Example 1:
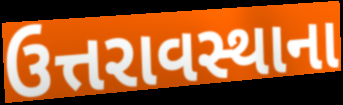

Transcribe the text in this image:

ઉત્તરાવસ્થાના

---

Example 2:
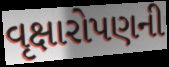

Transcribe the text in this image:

વૃક્ષારોપણની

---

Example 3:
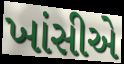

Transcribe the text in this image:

ખાંસીએ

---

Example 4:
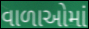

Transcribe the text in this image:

વાળાઓમાં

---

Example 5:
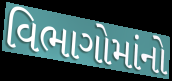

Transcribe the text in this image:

વિભાગોમાંનો